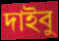
দাইবু